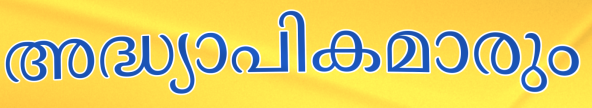
അദ്ധ്യാപികമാരും